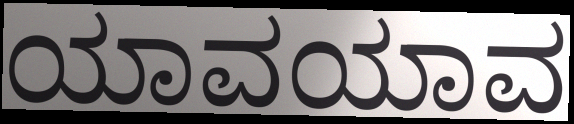
ಯಾವಯಾವ